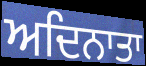
ਅਦਿਨਾਤਾ